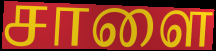
சாளை